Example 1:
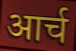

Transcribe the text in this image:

आर्च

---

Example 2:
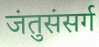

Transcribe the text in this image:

जंतुसंसर्ग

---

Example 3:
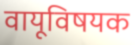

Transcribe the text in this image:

वायूविषयक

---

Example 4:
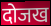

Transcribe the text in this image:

दोजख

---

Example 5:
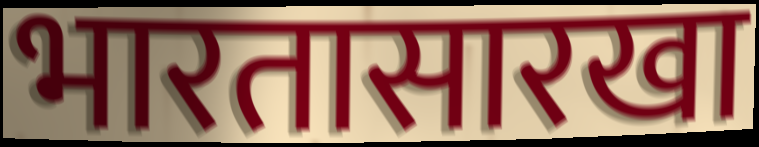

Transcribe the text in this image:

भारतासारखा